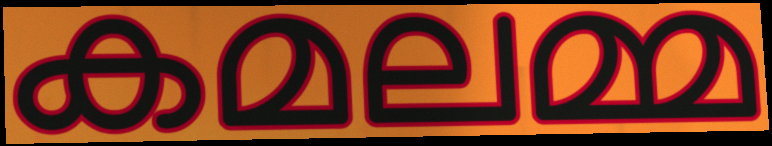
കമലമ്മ